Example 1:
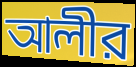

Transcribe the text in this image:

আলীর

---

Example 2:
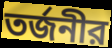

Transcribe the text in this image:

তর্জনীর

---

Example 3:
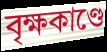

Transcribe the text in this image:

বৃক্ষকাণ্ডে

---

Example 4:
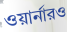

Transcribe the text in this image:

ওয়ার্নারও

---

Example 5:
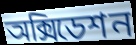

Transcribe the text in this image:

অক্সিডেশন